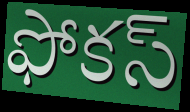
ఫోకస్